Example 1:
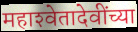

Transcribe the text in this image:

महाश्वेतादेवींच्या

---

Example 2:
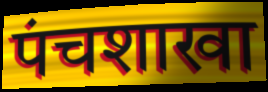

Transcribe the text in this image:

पंचशाखा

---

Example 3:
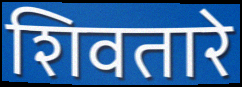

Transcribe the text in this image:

शिवतारे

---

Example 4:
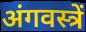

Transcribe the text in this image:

अंगवस्त्रें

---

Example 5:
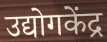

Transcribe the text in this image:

उद्योगकेंद्र